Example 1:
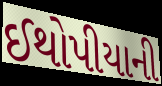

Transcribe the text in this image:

ઈથોપીયાની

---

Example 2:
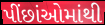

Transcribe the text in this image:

પીંછાંઓમાંથી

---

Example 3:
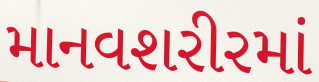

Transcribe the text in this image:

માનવશરીરમાં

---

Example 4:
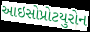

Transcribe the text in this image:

આઇસોપ્રોટયુરોન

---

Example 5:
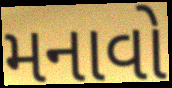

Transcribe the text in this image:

મનાવો